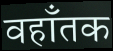
वहाँतक